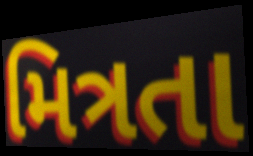
મિત્રતા